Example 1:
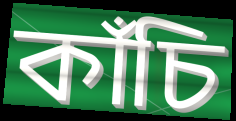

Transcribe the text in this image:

কাঁচি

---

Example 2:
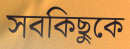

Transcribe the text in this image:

সবকিছুকে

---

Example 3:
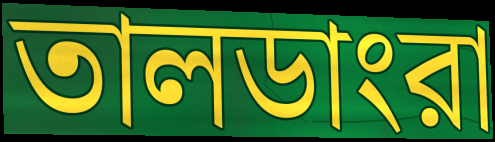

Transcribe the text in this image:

তালডাংরা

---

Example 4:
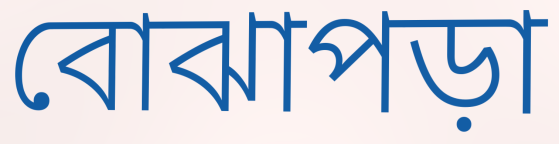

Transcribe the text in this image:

বোঝাপড়া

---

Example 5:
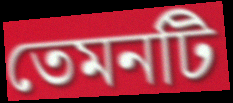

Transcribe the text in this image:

তেমনটি